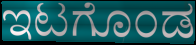
ಇಟಗೊಂಡ